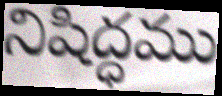
నిషిద్ధము